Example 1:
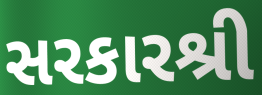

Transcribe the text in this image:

સરકારશ્રી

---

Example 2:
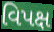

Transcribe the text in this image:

વિપક્ષ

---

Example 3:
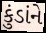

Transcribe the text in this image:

કુંડાંને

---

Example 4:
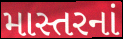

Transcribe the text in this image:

માસ્તરનાં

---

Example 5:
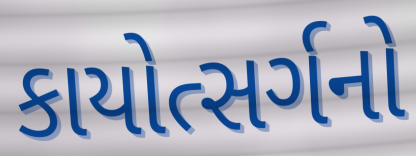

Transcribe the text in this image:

કાયોત્સર્ગનો